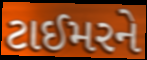
ટાઈમરને